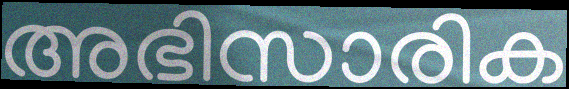
അഭിസാരിക